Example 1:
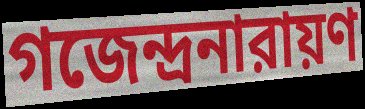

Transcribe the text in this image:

গজেন্দ্রনারায়ণ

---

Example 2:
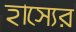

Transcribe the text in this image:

হাস্যের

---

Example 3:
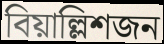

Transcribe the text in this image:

বিয়াল্লিশজন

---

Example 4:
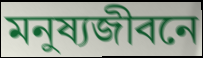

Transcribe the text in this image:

মনুষ্যজীবনে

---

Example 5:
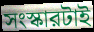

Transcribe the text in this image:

সংস্কারটাই